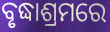
ବୃଦ୍ଧାଶ୍ରମରେ